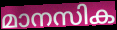
മാനസിക